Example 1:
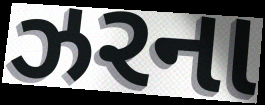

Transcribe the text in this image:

ઝરના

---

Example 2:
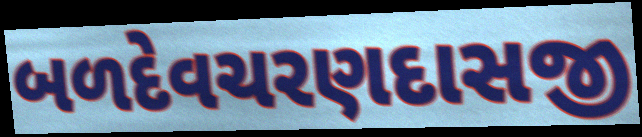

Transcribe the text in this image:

બળદેવચરણદાસજી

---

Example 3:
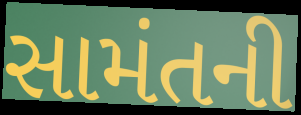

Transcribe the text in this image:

સામંતની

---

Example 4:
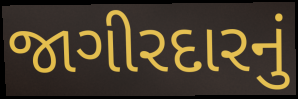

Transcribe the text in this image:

જાગીરદારનું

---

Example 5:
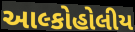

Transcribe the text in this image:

આલ્કોહોલીય